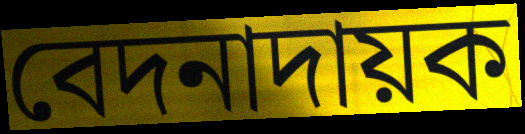
বেদনাদায়ক